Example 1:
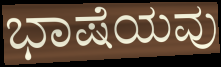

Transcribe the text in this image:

ಭಾಷೆಯವು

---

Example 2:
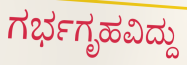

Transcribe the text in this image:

ಗರ್ಭಗೃಹವಿದ್ದು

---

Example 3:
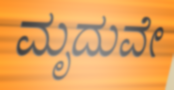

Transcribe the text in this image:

ಮೃದುವೇ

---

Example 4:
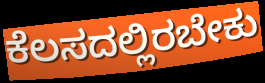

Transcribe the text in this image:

ಕೆಲಸದಲ್ಲಿರಬೇಕು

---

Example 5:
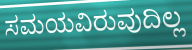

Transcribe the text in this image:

ಸಮಯವಿರುವುದಿಲ್ಲ